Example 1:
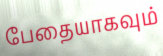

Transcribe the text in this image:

பேதையாகவும்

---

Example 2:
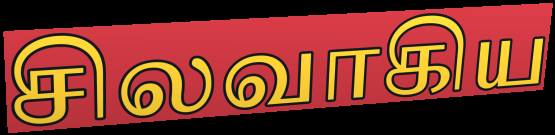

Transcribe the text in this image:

சிலவாகிய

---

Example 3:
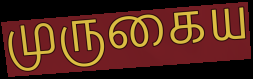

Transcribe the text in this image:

முருகைய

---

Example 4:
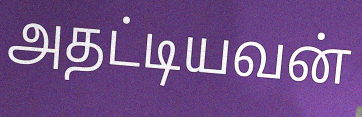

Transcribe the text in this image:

அதட்டியவன்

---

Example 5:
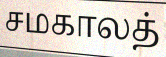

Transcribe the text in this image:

சமகாலத்